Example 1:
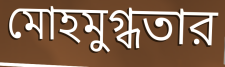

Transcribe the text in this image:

মোহমুগ্ধতার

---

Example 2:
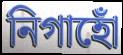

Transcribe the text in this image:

নিগাহোঁ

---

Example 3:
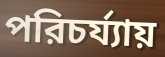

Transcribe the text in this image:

পরিচর্য্যায়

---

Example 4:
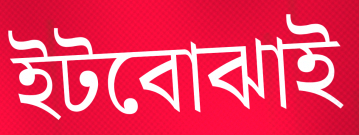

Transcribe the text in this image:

ইটবোঝাই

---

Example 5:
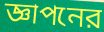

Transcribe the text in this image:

জ্ঞাপনের